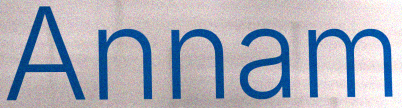
Annam